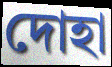
দোহা